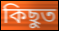
কিছুত